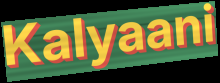
Kalyaani